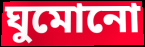
ঘুমোনো